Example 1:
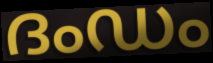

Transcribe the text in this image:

ദംഡം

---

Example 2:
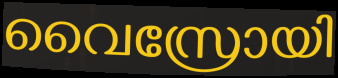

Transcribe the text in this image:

വൈസ്രോയി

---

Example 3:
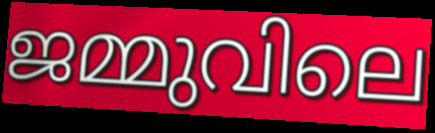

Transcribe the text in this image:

ജമ്മുവിലെ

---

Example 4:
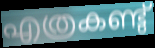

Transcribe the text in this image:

എത്രകണ്ടു്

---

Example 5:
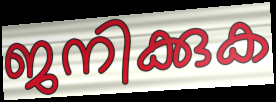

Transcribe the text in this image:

ജനിക്കുക